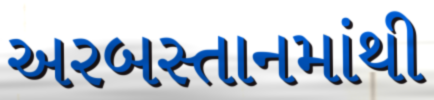
અરબસ્તાનમાંથી